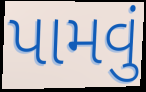
પામવું